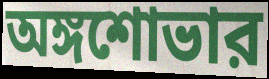
অঙ্গশোভার